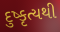
દુષ્કૃત્યથી